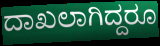
ದಾಖಲಾಗಿದ್ದರೂ